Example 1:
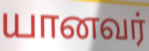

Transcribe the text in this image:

யானவர்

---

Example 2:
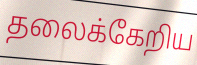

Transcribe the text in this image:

தலைக்கேறிய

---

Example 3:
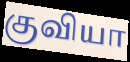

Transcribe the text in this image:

குவியா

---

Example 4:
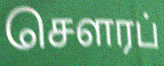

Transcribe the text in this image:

செளரப்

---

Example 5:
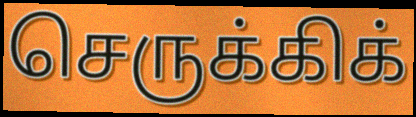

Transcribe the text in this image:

செருக்கிக்